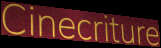
Cinecriture